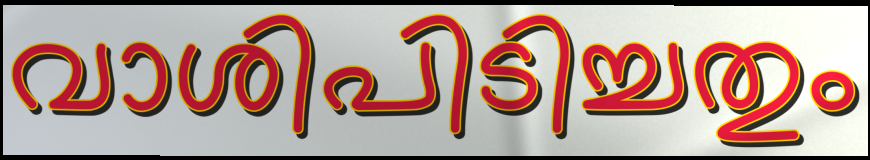
വാശിപിടിച്ചതും